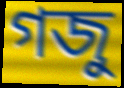
গজু